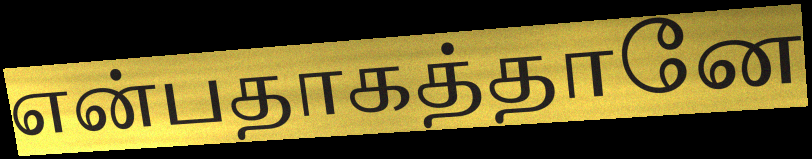
என்பதாகத்தானே